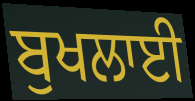
ਬੁਖਲਾਈ